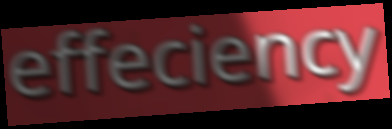
effeciency